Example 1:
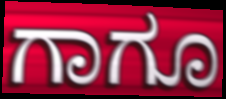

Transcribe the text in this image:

ಗಾಗೂ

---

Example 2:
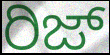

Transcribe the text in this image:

ರಿಜ್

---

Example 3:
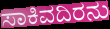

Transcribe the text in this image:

ಸಾಕಿವದಿರನು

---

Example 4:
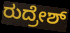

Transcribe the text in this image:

ರುದ್ರೇಶ್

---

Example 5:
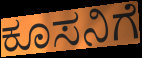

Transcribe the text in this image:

ಕೂಸನಿಗೆ